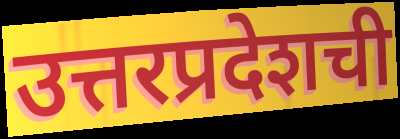
उत्तरप्रदेशची